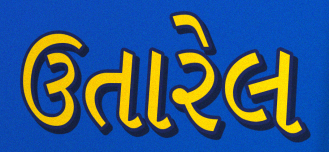
ઉતારેલ